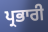
ਪ੍ਰਭਾਰੀ